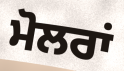
ਮੋਲਰਾਂ